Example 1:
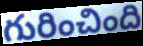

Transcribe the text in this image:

గురించింది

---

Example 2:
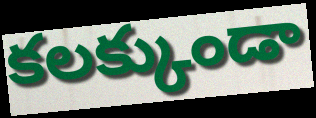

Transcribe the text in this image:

కలక్కుండా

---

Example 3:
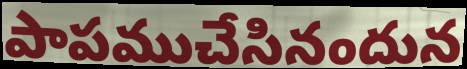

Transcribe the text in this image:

పాపముచేసినందున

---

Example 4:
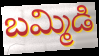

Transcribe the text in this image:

బమ్మిడి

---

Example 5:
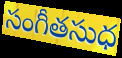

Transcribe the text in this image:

సంగీతసుధ